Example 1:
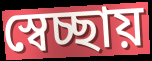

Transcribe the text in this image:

স্বেচ্ছায়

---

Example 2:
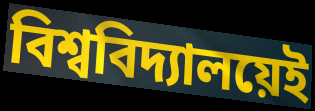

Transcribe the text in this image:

বিশ্ববিদ্যালয়েই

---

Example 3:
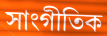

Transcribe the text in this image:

সাংগীতিক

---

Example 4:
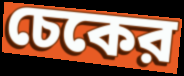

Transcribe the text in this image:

চেকের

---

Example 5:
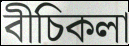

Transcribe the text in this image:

বীচিকলা